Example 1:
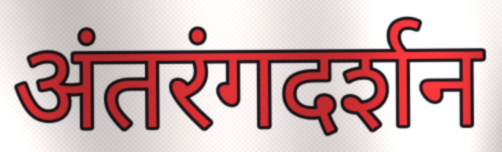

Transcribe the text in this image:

अंतरंगदर्शन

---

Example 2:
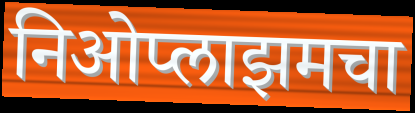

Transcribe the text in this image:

निओप्लाझमचा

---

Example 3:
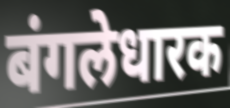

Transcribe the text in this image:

बंगलेधारक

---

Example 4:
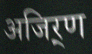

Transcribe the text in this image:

अजिर्ण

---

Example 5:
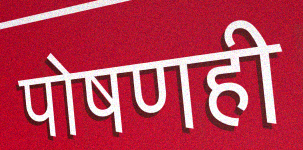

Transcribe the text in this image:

पोषणही